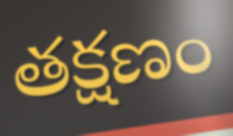
తక్షణం